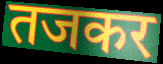
तजकर